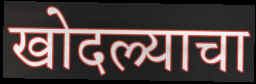
खोदल्याचा